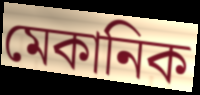
মেকানিক